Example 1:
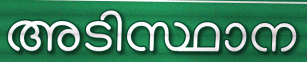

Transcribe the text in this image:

അടിസ്ഥാന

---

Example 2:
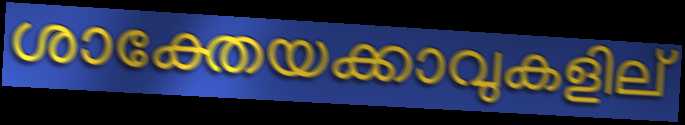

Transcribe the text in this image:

ശാക്തേയക്കാവുകളില്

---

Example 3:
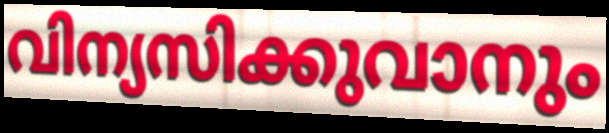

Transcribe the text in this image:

വിന്യസിക്കുവാനും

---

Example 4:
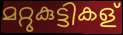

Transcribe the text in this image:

മറ്റുകുട്ടികള്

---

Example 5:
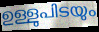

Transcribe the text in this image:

ഉള്ളുപിടയും